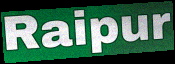
Raipur